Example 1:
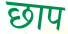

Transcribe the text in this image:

छाप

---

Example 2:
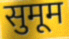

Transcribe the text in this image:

सुमूम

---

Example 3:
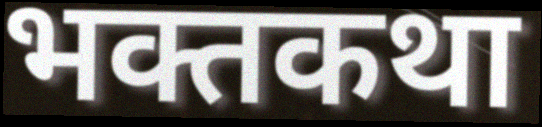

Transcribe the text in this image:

भक्तकथा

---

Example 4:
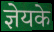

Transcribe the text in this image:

ज्ञेयके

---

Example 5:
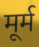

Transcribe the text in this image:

मूर्म